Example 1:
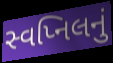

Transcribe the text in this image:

સ્વપ્નિલનું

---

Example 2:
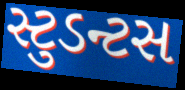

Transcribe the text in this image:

સ્ટુડન્ટસ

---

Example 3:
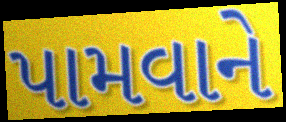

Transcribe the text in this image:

પામવાને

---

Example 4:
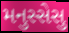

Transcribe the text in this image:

મનુસ્સેસુ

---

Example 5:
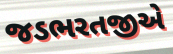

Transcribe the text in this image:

જડભરતજીએ